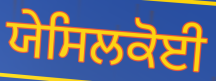
ਯੇਸਿਲਕੋਈ